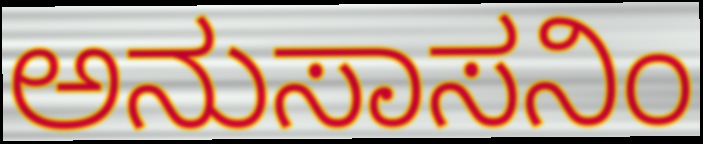
ಅನುಸಾಸನಿಂ